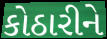
કોઠારીને